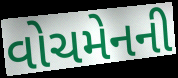
વોચમેનની